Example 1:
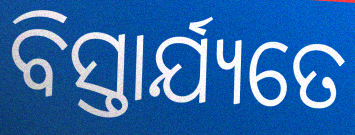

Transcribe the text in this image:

ବିସ୍ତାର୍ଯ୍ୟତେ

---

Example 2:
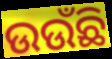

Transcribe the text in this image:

ଉଉଁଛି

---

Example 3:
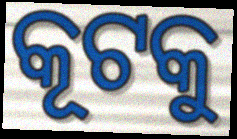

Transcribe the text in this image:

କୂଟକୁ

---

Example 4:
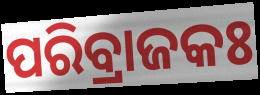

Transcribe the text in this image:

ପରିବ୍ରାଜକଃ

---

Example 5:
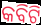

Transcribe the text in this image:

କବିଟି